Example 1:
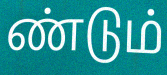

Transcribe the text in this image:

ண்டும்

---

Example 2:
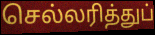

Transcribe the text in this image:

செல்லரித்துப்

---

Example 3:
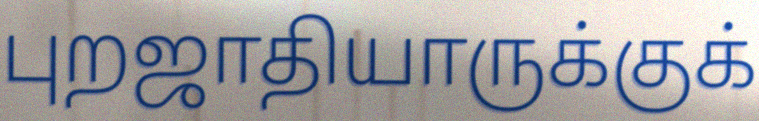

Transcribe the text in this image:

புறஜாதியாருக்குக்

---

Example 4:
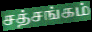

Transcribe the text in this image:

சத்சங்கம்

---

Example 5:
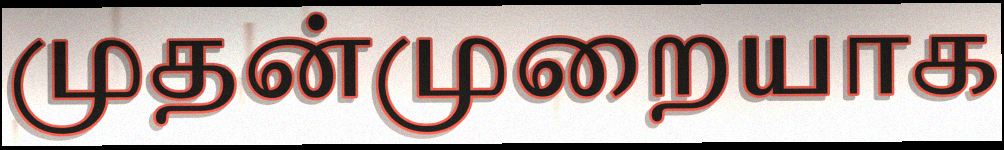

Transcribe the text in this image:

முதன்முறையாக